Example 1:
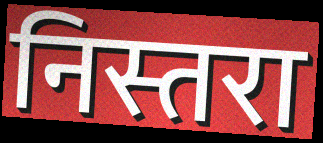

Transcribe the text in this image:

निस्तरा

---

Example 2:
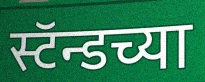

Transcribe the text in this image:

स्टॅन्डच्या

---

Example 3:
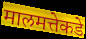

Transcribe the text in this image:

मालमत्तेकडे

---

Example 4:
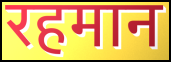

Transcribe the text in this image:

रहमान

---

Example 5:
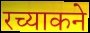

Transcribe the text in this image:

रच्याकने